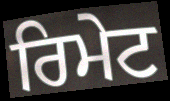
ਰਿਮੇਟ